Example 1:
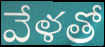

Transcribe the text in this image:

వేళతో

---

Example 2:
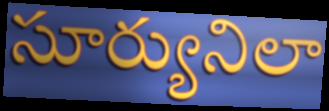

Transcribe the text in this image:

సూర్యునిలా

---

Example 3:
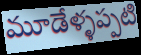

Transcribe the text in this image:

మూడేళ్ళప్పటి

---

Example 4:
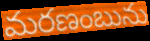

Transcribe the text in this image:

మరణంబును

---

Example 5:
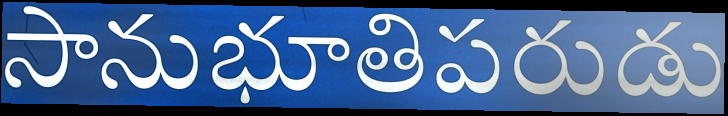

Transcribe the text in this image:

సానుభూతిపరుడు